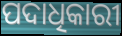
ପଦାଧିକାରୀ